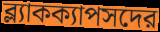
ব্ল্যাকক্যাপসদের